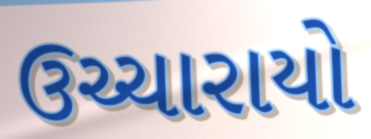
ઉચ્ચારાયો